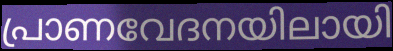
പ്രാണവേദനയിലായി